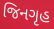
જિનગૃહ